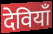
देवियाँ